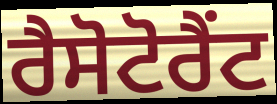
ਰੈਸੋਟੋਰੈਂਟ